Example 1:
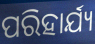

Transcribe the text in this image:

ପରିହାର୍ଯ୍ୟ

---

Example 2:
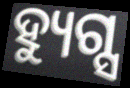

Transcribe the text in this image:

ହ୍ୟୁଗ୍ସ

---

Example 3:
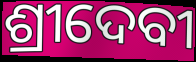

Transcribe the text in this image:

ଶ୍ରୀଦେବୀ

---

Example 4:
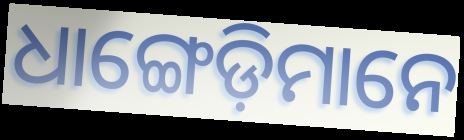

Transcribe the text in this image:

ଧାଙ୍ଗେଡ଼ିମାନେ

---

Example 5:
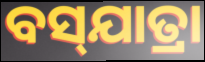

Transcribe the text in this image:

ବସ୍‌ଯାତ୍ରା